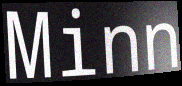
Minn